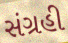
સંગ્રહી